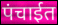
पंचाईत